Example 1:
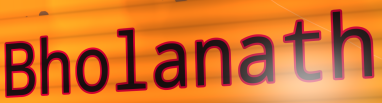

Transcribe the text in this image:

Bholanath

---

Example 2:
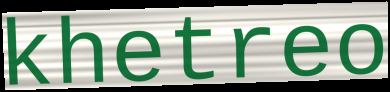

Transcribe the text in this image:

khetreo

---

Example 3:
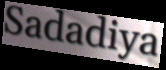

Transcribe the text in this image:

Sadadiya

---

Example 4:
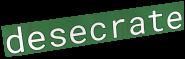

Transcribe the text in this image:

desecrate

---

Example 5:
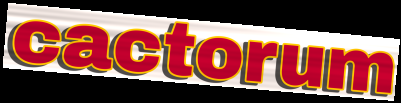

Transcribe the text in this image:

cactorum